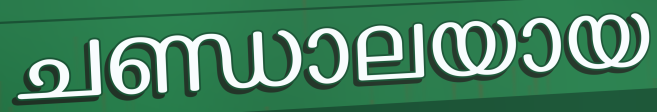
ചണ്ഡാലയായ